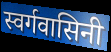
स्वर्गवासिनी